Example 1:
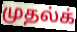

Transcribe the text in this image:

முதல்க்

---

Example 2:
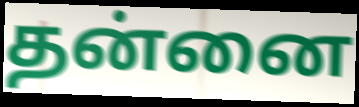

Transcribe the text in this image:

தன்னை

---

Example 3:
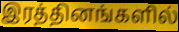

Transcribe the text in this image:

இரத்தினங்களில்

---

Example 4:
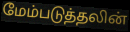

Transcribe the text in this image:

மேம்படுத்தலின்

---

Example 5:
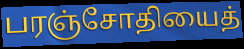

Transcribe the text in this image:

பரஞ்சோதியைத்